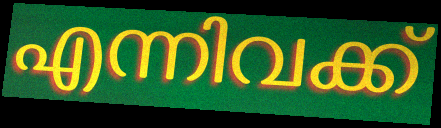
എന്നിവക്ക്